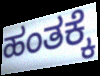
ಹಂತಕ್ಕೆ